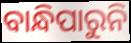
ବାନ୍ଧିପାରୁନି